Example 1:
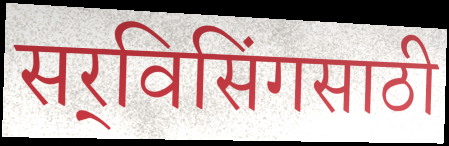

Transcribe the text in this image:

सर्विसिंगसाठी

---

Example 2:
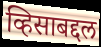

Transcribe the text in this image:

व्हिसाबद्दल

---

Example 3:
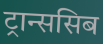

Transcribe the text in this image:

ट्रान्ससिब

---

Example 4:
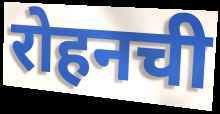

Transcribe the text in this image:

रोहनची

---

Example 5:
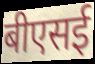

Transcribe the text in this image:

बीएसई